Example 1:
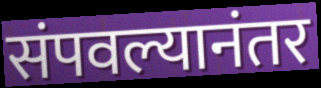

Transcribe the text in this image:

संपवल्यानंतर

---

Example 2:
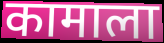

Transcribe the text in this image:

कामाला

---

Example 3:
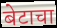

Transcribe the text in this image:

बेटाचा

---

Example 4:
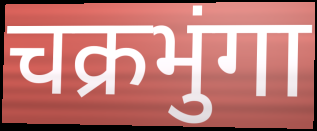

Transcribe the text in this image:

चक्रभुंगा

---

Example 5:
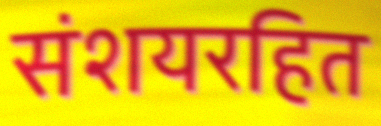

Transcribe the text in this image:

संशयरहित